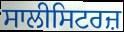
ਸਾਲੀਸਿਟਰਜ਼